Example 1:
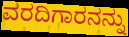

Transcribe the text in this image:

ವರದಿಗಾರನನ್ನು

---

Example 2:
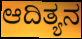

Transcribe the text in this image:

ಆದಿತ್ಯನ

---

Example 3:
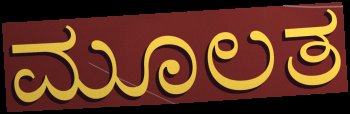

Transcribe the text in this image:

ಮೂಲತ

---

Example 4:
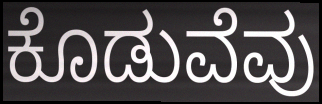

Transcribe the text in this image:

ಕೊಡುವೆವು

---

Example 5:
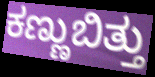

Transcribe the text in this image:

ಕಣ್ಣುಬಿತ್ತು